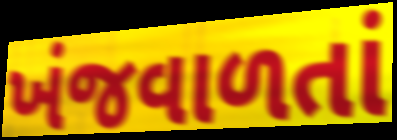
ખંજવાળતાં